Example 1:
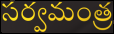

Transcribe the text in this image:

సర్వమంత్ర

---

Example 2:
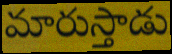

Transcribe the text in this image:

మారుస్తాడు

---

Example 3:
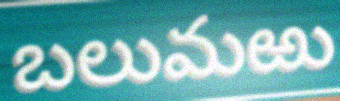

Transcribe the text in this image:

బలుమఱు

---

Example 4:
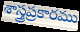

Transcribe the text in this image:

శాస్త్రప్రకారము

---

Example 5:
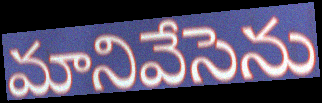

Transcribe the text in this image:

మానివేసెను